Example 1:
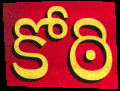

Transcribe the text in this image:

కోఠి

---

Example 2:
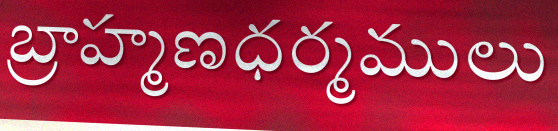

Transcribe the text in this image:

బ్రాహ్మణధర్మములు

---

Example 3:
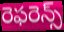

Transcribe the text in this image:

రెఫరెన్స్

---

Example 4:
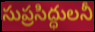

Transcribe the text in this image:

సుప్రసిద్ధులనీ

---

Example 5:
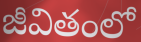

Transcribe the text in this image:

జీవితంలో